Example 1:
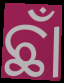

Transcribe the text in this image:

ଛାଁ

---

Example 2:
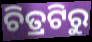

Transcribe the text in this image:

ଚିତ୍ରଟିରୁ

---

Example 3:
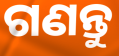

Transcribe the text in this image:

ଗଣନ୍ତୁ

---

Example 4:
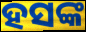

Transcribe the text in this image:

ହସଙ୍କ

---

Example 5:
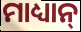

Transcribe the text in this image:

ମାଧ୍ୟାନ୍